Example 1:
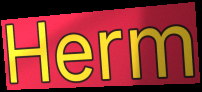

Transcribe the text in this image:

Herm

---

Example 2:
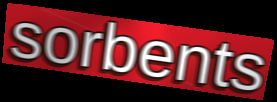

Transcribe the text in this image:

sorbents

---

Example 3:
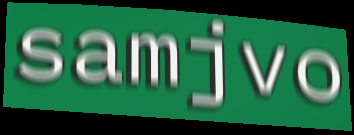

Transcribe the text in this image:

samjvo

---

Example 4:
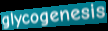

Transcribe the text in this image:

glycogenesis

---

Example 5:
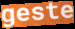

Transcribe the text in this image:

geste